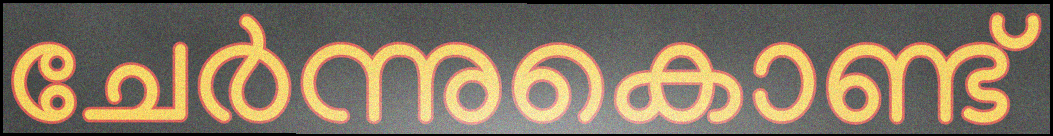
ചേർന്നുകൊണ്ട്